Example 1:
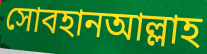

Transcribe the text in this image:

সোবহানআল্লাহ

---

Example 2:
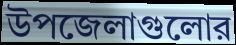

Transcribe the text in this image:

উপজেলাগুলোর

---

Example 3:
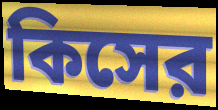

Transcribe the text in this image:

কিসের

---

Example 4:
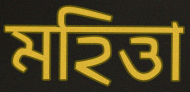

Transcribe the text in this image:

মহিত্তা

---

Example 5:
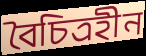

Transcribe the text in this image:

বৈচিত্রহীন